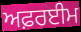
ਅਫ਼ਰਈਮ